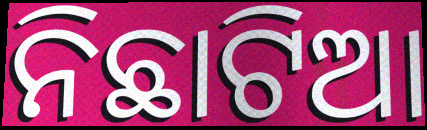
ନିଛାଟିଆ